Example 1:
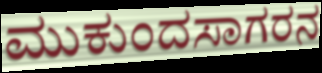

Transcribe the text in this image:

ಮುಕುಂದಸಾಗರನ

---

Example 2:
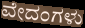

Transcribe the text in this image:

ವೇದಂಗಳು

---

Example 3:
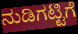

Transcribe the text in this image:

ನುಡಿಗಟ್ಟಿಗೆ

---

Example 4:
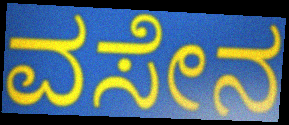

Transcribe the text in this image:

ವಸೇನ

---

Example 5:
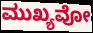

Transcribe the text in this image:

ಮುಖ್ಯವೋ